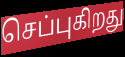
செப்புகிறது